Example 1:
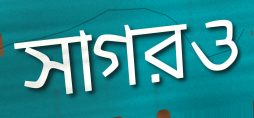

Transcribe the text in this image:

সাগরও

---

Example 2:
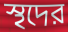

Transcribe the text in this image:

স্থদের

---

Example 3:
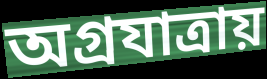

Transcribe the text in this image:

অগ্রযাত্রায়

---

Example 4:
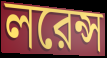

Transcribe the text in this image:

লরেন্স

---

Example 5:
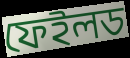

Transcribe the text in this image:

ফেইলড